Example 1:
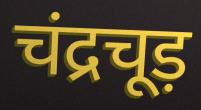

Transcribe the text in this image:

चंद्रचूड़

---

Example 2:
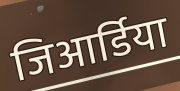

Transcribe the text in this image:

जिआर्डिया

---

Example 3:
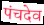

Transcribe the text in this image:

पंचदेव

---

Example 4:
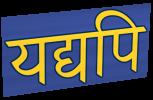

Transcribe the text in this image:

यद्यपि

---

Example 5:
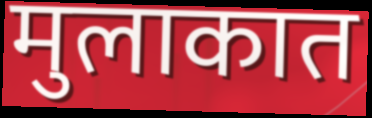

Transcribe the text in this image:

मुलाकात